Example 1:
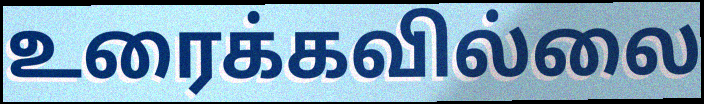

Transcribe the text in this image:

உரைக்கவில்லை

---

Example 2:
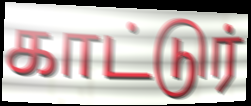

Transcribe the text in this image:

காட்டுர்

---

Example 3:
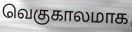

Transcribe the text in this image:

வெகுகாலமாக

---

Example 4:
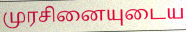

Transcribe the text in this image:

முரசினையுடைய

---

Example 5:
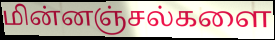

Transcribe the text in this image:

மின்னஞ்சல்களை